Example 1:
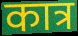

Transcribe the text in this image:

कात्र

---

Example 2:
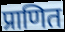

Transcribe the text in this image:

प्राणित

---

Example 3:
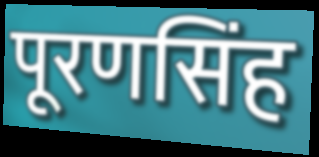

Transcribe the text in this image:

पूरणसिंह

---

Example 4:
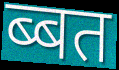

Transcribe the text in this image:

ब्बत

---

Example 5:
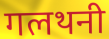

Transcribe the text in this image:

गलथनी